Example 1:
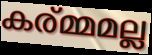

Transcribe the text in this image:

കര്മ്മമല്ല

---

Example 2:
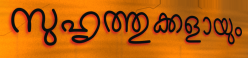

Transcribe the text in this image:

സുഹൃത്തുക്കളായും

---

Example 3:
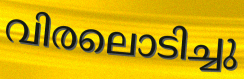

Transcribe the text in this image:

വിരലൊടിച്ചു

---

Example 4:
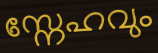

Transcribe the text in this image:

സ്നേഹവും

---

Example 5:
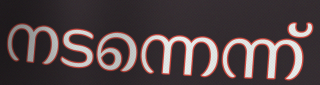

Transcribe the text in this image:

നടന്നെന്ന്